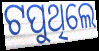
ଟପୁଥିଲେ